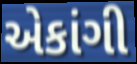
એકાંગી